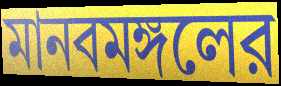
মানবমঙ্গলের